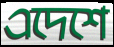
এদেশে